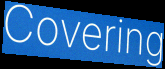
Covering